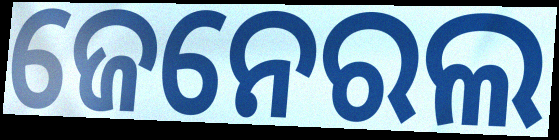
ଜେନେରଲ